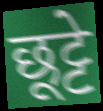
छूट्टे